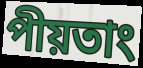
পীয়তাং